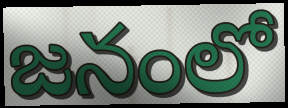
జనంలో